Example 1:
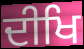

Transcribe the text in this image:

ਦੀਖਿ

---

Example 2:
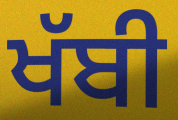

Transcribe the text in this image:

ਖੱਬੀ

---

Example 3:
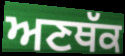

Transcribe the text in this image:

ਅਣਥੱਕ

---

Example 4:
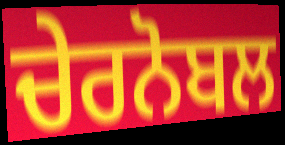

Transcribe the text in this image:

ਚੇਰਨੋਬਲ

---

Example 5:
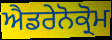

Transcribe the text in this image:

ਐਡਰੇਨੋਕ੍ਰੋਮ